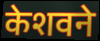
केशवने